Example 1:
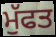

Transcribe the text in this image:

ਮੁੱਫਤ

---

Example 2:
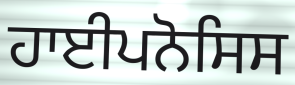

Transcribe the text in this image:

ਹਾਈਪਨੋਸਿਸ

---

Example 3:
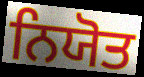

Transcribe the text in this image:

ਨਿਯੋਤ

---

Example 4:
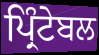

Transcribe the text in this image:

ਪ੍ਰਿੰਟੇਬਲ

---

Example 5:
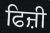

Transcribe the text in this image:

ਫਿਜ਼ੀ